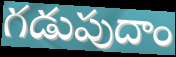
గడుపుదాం